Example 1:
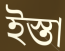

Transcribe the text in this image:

ইস্তা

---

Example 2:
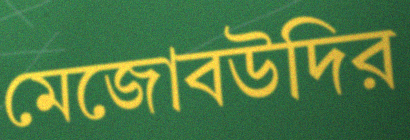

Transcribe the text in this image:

মেজোবউদির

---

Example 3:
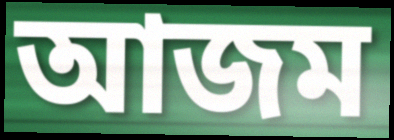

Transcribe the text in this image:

আজম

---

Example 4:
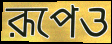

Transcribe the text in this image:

রূপেও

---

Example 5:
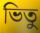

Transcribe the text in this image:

ভিতু